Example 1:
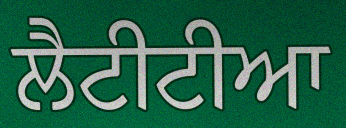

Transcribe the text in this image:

ਲੈਟੀਟੀਆ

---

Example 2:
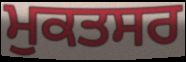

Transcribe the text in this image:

ਮੁਕਤਸਰ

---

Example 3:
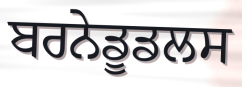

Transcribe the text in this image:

ਬਰਨੇਡੂਡਲਸ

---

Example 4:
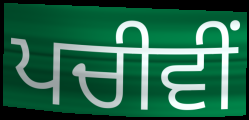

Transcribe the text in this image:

ਪਚੀਵੀਂ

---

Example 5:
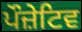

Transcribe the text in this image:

ਪੌਜ਼ੇਟਿਵ